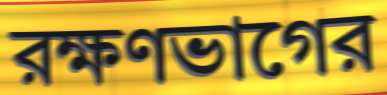
রক্ষণভাগের